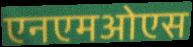
एनएमओएस